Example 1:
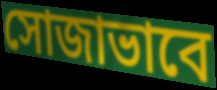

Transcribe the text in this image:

সোজাভাবে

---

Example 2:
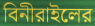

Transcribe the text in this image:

বিনীরাইলের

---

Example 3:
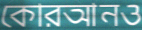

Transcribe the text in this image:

কোরআনও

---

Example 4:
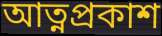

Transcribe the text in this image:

আত্নপ্রকাশ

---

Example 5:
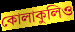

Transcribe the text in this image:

কোলাকুলিও